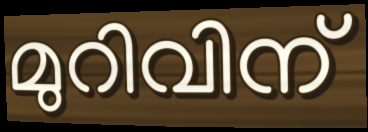
മുറിവിന്